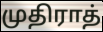
முதிராத்